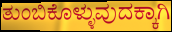
ತುಂಬಿಕೊಳ್ಳುವುದಕ್ಕಾಗಿ